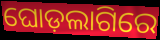
ଘୋଡ଼ଲାଗିରେ